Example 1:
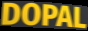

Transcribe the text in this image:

DOPAL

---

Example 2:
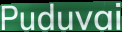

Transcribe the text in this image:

Puduvai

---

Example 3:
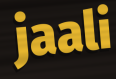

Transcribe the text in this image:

jaali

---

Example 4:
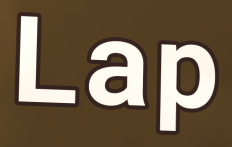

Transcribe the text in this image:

Lap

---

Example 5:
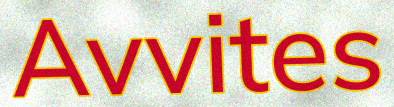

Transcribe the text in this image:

Avvites